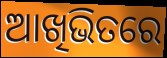
ଆଖିଭିତରେ